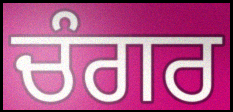
ਚੰਗਰ